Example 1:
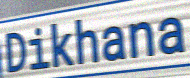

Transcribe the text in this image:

Dikhana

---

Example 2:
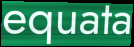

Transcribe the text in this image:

equata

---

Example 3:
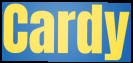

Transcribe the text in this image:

Cardy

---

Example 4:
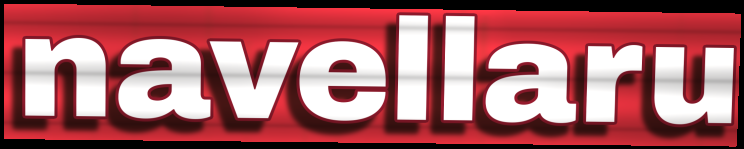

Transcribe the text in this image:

navellaru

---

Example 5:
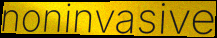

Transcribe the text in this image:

noninvasive